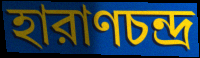
হারাণচন্দ্র